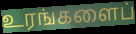
உரங்களைப்